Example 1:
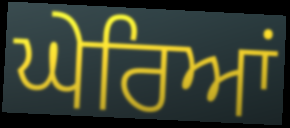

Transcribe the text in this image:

ਘੇਰਿਆਂ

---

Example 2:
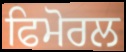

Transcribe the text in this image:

ਫਿਮੋਰਲ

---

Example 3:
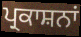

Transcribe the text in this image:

ਪ੍ਰਕਾਸ਼ਨਾਂ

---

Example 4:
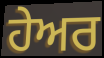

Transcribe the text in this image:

ਹੇਅਰ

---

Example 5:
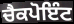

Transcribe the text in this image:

ਚੈਕਪੋਇੰਟ